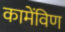
कामेंविण